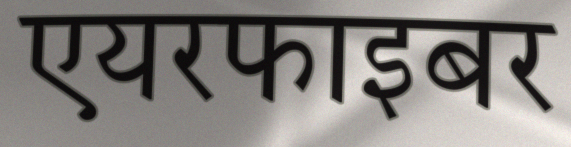
एयरफाइबर